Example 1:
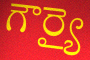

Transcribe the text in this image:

గౌర్యై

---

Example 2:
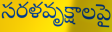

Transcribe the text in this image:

సరళవృక్షాలపై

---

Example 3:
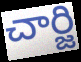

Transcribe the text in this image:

చార్జి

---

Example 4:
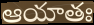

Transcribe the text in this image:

ఆయాతః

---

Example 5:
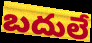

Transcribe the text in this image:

బదులే